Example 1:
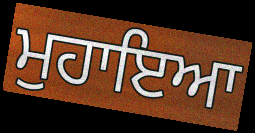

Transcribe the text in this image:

ਮੁਹਾਇਆ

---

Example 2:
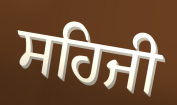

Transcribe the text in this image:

ਸਹਿਜੀ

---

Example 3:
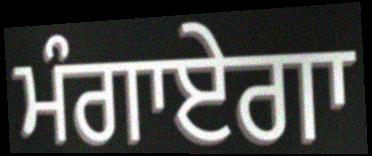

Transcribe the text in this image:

ਮੰਗਾਏਗਾ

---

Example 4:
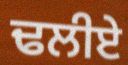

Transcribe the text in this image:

ਢਲੀਏ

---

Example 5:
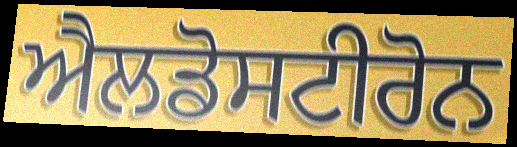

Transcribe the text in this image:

ਐਲਡੋਸਟੀਰੋਨ